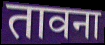
तावना